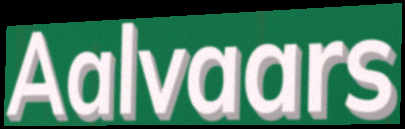
Aalvaars